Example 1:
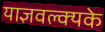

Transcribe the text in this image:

याज्ञवल्क्यके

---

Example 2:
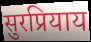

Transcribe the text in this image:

सुरप्रियाय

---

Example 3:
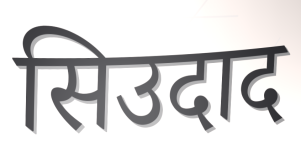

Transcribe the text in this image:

सिउदाद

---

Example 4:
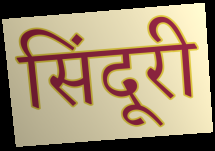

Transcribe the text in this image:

सिंदूरी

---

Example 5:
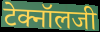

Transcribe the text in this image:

टेक्नॉलजी